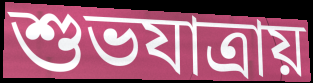
শুভযাত্রায়